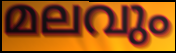
മലവും